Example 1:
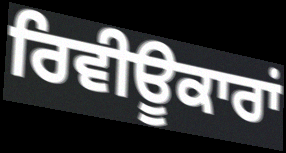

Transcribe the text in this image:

ਰਿਵੀਊਕਾਰਾਂ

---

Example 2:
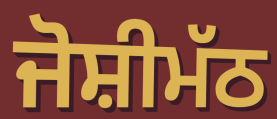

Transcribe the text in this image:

ਜੋਸ਼ੀਮੱਠ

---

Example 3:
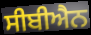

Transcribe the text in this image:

ਸੀਬੀਐਨ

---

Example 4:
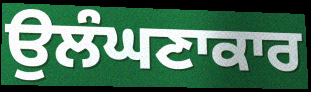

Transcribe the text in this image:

ਉਲੰਘਣਾਕਾਰ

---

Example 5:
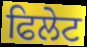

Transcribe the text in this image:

ਫਿਲੇਟ